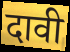
दावी